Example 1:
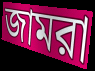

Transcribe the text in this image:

জামরা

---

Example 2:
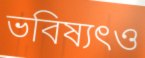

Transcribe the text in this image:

ভবিষ্যৎও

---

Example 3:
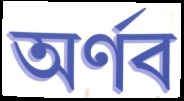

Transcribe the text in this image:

অর্ণব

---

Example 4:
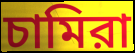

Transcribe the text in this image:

চামিরা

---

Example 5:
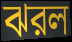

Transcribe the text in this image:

ঝরল